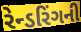
રેન્ડરિંગની